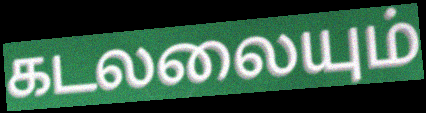
கடலலையும்